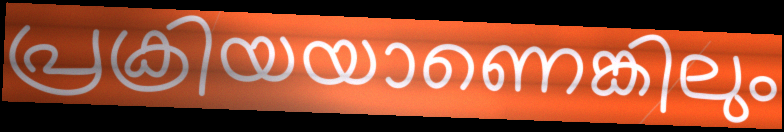
പ്രക്രിയയാണെങ്കിലും